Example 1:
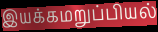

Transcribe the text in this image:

இயக்கமறுப்பியல்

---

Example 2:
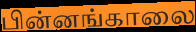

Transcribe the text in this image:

பின்னங்காலை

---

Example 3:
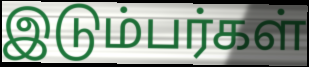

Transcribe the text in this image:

இடும்பர்கள்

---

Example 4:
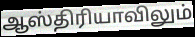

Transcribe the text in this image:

ஆஸ்திரியாவிலும்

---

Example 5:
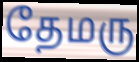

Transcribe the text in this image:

தேமரு